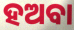
ହଅବା